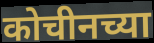
कोचीनच्या